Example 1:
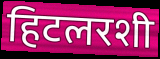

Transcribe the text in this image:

हिटलरशी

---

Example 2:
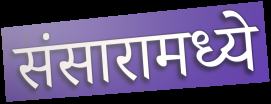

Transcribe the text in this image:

संसारामध्ये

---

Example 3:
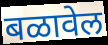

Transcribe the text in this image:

बळावेल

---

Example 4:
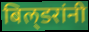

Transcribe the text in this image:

बिल्डरांनी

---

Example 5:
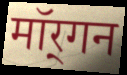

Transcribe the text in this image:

मॉर्गन